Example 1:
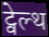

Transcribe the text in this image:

ट्वेल्थ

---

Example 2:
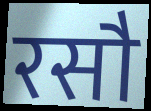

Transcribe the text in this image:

रसौ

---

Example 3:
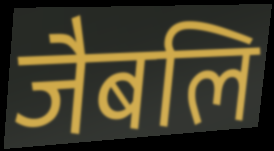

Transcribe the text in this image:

जैबलि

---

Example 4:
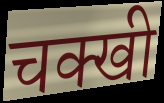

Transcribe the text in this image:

चक्खी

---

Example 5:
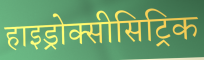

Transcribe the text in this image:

हाइड्रोक्सीसिट्रिक